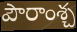
పౌరాంశ్చ